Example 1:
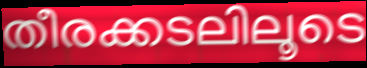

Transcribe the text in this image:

തീരക്കടലിലൂടെ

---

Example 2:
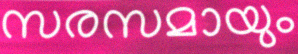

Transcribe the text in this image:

സരസമായും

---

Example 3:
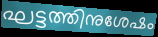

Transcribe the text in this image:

ഘട്ടത്തിനുശേഷം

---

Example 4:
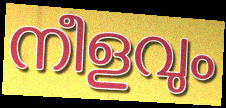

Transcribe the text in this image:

നീളവും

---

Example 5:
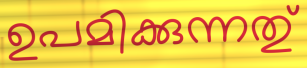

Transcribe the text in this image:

ഉപമിക്കുന്നതു്